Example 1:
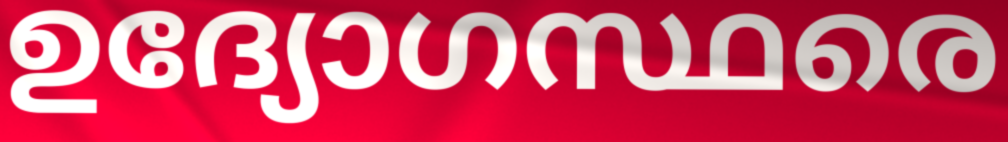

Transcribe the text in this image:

ഉദ്യോഗസ്ഥരെ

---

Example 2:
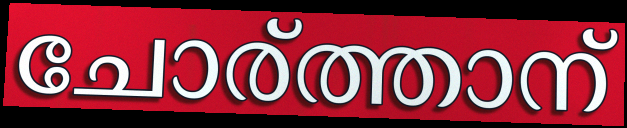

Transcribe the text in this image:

ചോര്ത്താന്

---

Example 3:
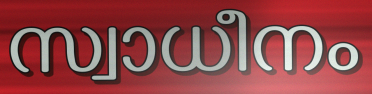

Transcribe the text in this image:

സ്വാധീനം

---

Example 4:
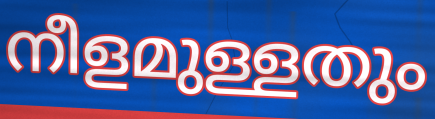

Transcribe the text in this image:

നീളമുള്ളതും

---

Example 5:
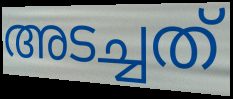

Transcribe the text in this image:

അടച്ചത്